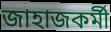
জাহাজকর্মী